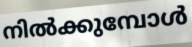
നിൽക്കുമ്പോൾ